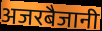
अजरबैजानी